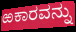
ಱಕಾರವನ್ನು